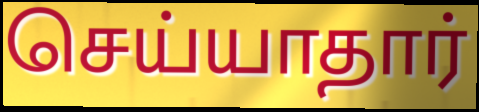
செய்யாதார்